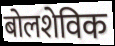
बोलशेविक